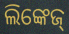
ଲିଙ୍କେଜ୍